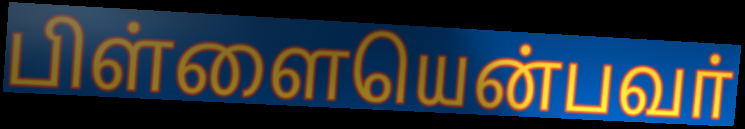
பிள்ளையென்பவர்